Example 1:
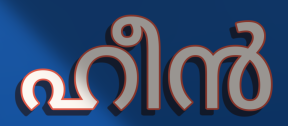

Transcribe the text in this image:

ഹീൻ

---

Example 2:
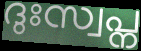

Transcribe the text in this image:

ദുഃസ്വപ്ന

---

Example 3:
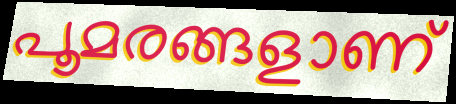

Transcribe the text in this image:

പൂമരങ്ങളാണ്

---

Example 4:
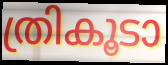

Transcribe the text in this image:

ത്രികൂടാ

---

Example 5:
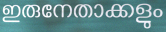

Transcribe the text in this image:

ഇരുനേതാക്കളും